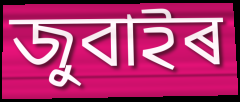
জুবাইৰ